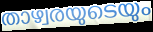
താഴ്വരയുടെയും